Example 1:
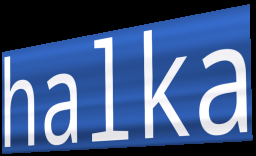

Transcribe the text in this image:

halka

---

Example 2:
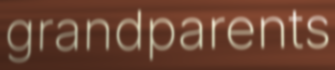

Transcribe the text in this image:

grandparents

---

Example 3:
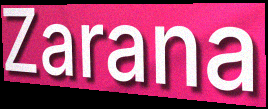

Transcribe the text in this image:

Zarana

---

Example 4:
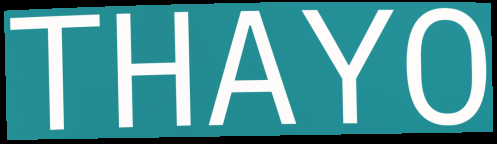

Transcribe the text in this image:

THAYO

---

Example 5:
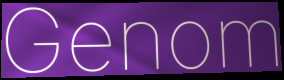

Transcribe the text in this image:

Genom